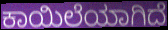
ಕಾಯಿಲೆಯಾಗಿದೆ